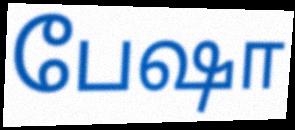
பேஷா